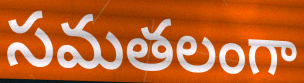
సమతలంగా